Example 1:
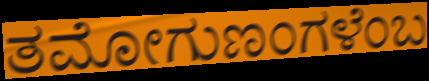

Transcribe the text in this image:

ತಮೋಗುಣಂಗಳೆಂಬ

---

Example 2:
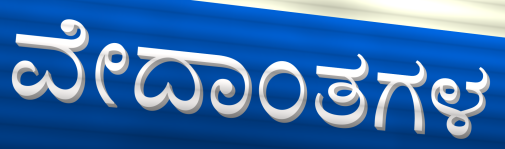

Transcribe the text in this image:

ವೇದಾಂತಗಳ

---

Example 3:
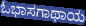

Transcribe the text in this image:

ಓಭಾಸಗಾಥಾಯ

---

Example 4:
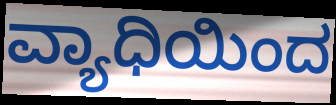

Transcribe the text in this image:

ವ್ಯಾಧಿಯಿಂದ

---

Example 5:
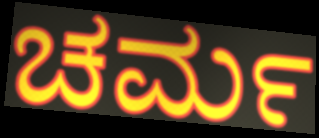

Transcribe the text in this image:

ಚರ್ಮ